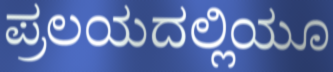
ಪ್ರಲಯದಲ್ಲಿಯೂ